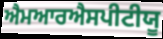
ਐਮਆਰਐਸਪੀਟੀਯੂ